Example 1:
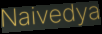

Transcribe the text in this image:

Naivedya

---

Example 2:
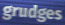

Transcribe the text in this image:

grudges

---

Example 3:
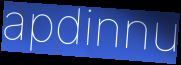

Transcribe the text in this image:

apdinnu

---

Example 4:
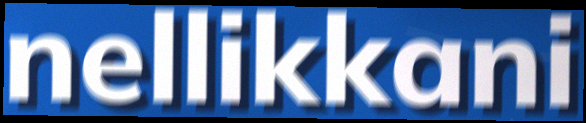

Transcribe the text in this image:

nellikkani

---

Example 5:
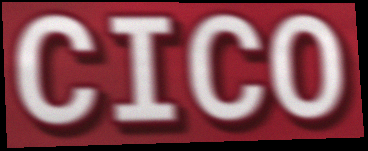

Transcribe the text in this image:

CICO